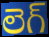
లెగ్